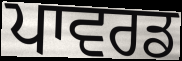
ਪਾਵਰਡ